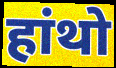
हांथो